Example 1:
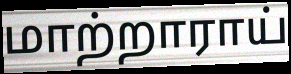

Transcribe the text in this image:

மாற்றாராய்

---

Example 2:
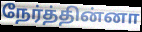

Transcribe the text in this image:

நேர்த்தின்னா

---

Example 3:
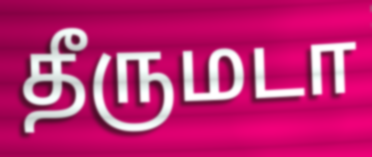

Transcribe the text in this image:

தீருமடா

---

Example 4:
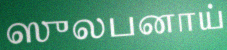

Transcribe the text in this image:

ஸுலபனாய்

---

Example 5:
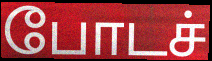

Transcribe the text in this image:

போடச்